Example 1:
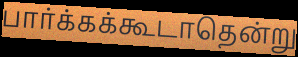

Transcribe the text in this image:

பார்க்கக்கூடாதென்று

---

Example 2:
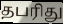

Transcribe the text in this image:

தபரிது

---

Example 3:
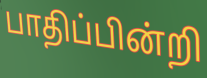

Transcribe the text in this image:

பாதிப்பின்றி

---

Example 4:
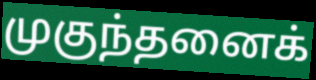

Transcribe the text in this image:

முகுந்தனைக்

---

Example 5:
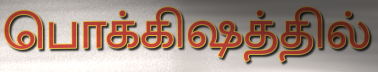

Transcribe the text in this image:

பொக்கிஷத்தில்